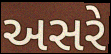
અસરે